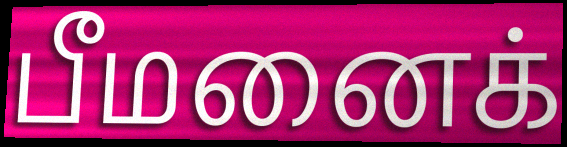
பீமனைக்